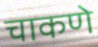
चाकणे